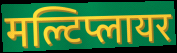
मल्टिप्लायर